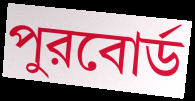
পুরবোর্ড